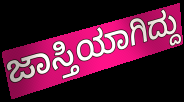
ಜಾಸ್ತಿಯಾಗಿದ್ದು